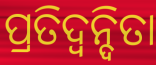
ପ୍ରତିଦ୍ଵନ୍ଦିତା